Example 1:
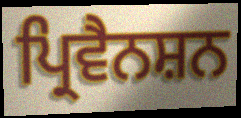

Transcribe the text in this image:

ਪ੍ਰਿਵੈਨਸ਼ਨ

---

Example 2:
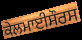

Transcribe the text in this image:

ਕੇਲਮਾਈਸੌਰਸ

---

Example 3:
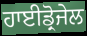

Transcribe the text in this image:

ਹਾਈਡ੍ਰੋਜੇਲ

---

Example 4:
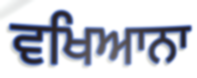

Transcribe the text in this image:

ਵਖਿਆਨਾ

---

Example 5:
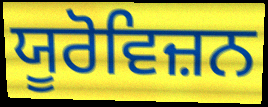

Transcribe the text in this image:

ਯੂਰੋਵਿਜ਼ਨ